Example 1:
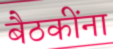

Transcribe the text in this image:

बैठकींना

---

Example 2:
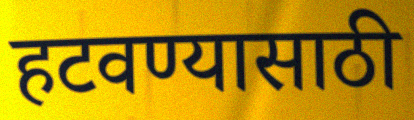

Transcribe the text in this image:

हटवण्यासाठी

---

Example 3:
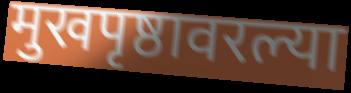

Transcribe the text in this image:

मुखपृष्ठावरल्या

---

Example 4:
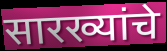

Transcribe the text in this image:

सारख्यांचे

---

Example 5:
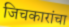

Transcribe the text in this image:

जिचकारांचा